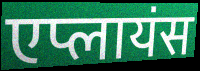
एप्लायंस